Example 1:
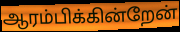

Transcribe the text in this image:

ஆரம்பிக்கின்றேன்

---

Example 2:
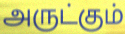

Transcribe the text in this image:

அருட்கும்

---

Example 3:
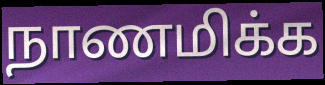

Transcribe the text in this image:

நாணமிக்க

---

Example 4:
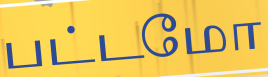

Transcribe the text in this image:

பட்டமோ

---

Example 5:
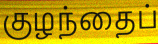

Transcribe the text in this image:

குழந்தைப்